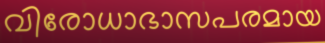
വിരോധാഭാസപരമായ